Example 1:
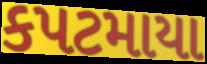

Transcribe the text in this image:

કપટમાયા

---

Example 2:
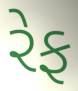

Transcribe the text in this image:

રેફ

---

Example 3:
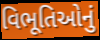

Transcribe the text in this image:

વિભૂતિઓનું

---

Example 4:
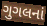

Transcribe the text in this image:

ગુગલનાં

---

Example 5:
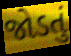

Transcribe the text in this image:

જોડતું